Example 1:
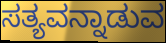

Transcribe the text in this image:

ಸತ್ಯವನ್ನಾಡುವ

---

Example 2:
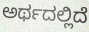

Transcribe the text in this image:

ಅರ್ಥದಲ್ಲಿದೆ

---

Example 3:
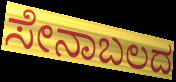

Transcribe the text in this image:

ಸೇನಾಬಲದ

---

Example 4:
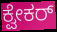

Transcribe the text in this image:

ಕ್ವೇಕರ್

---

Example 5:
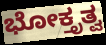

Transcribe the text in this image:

ಭೋಕ್ತೃತ್ವ